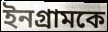
ইনগ্রামকে